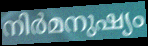
നിർമനുഷ്യം